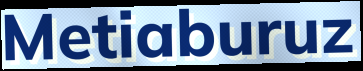
Metiaburuz